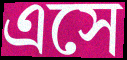
এসে